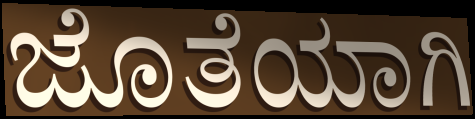
ಜೊತೆಯಾಗಿ